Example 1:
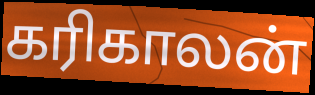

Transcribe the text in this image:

கரிகாலன்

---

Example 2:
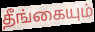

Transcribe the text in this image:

தீங்கையும்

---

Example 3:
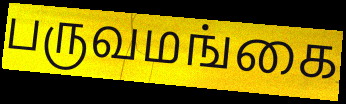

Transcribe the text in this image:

பருவமங்கை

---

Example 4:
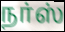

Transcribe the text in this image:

நர்ஸ்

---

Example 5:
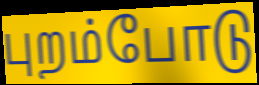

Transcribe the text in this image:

புறம்போடு